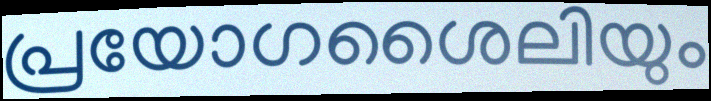
പ്രയോഗശൈലിയും